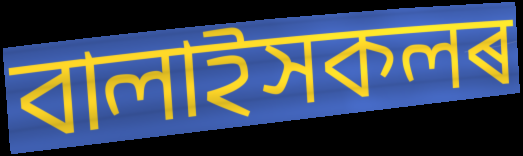
বালাইসকলৰ